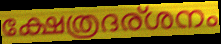
ക്ഷേത്രദര്ശനം